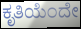
ಕೃತಿಯೆಂದೇ